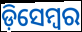
ଡ଼ିସେମ୍ୱର